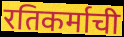
रतिकर्माची